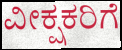
ವೀಕ್ಷಕರಿಗೆ